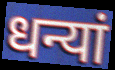
धन्यां